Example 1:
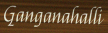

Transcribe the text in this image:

Ganganahalli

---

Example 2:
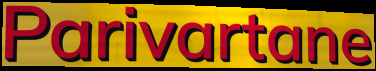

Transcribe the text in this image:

Parivartane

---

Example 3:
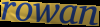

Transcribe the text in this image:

rowan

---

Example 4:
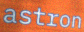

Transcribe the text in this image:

astron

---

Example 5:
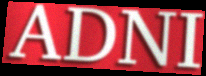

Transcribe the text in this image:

ADNI